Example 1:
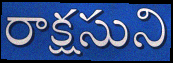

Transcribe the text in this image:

రాక్షసుని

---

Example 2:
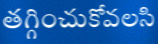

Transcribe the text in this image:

తగ్గించుకోవలసి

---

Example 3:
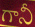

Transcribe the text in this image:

గానీ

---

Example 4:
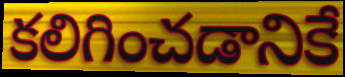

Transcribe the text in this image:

కలిగించడానికే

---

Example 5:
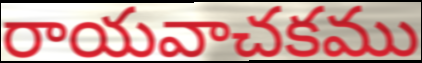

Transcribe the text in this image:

రాయవాచకము